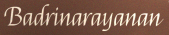
Badrinarayanan